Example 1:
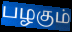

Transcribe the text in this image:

பழகும்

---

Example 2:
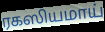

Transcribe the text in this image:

ரகஸியமாய்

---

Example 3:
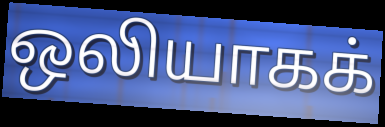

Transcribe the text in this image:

ஒலியாகக்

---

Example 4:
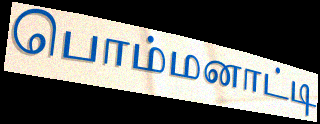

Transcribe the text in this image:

பொம்மனாட்டி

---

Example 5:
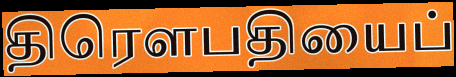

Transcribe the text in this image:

திரெளபதியைப்